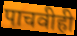
पाचवीही